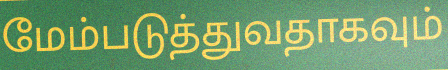
மேம்படுத்துவதாகவும்